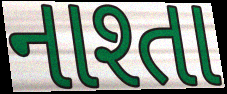
નાશ્તા